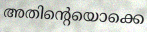
അതിന്റെയൊക്കെ